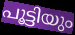
പൂട്ടിയും